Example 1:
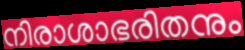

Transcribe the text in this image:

നിരാശാഭരിതനും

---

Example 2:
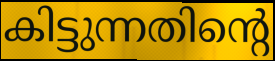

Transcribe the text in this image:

കിട്ടുന്നതിന്റെ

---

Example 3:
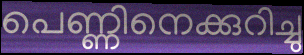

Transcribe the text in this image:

പെണ്ണിനെക്കുറിച്ചു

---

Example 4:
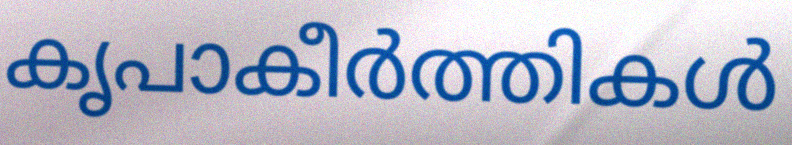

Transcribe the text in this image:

കൃപാകീർത്തികൾ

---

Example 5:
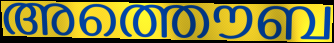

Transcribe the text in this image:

അത്തൌബ